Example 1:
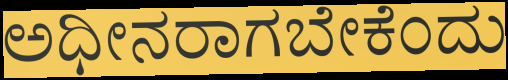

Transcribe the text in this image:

ಅಧೀನರಾಗಬೇಕೆಂದು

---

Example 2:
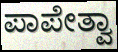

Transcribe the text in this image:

ಪಾಪೇತ್ವಾ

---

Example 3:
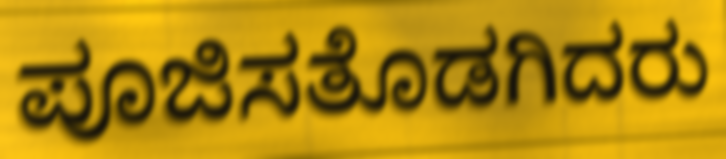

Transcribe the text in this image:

ಪೂಜಿಸತೊಡಗಿದರು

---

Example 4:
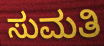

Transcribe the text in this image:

ಸುಮತಿ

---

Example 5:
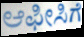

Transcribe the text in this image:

ಆಫೀಸಿಗೆ